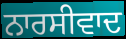
ਨਾਰਸੀਵਾਦ